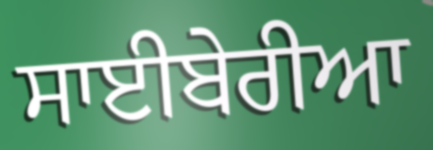
ਸਾਈਬੇਰੀਆ